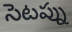
సెటప్ను